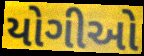
યોગીઓ